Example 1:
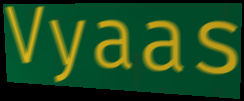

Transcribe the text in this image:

Vyaas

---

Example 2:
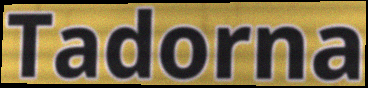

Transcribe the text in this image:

Tadorna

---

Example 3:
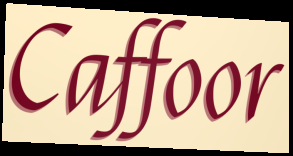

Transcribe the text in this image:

Caffoor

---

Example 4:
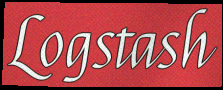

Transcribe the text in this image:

Logstash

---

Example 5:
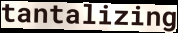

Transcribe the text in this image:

tantalizing